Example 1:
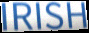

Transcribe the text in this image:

IRISH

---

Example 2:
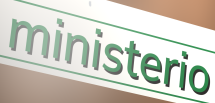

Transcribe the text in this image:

ministerio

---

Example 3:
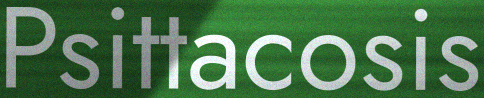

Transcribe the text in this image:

Psittacosis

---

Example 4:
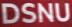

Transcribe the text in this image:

DSNU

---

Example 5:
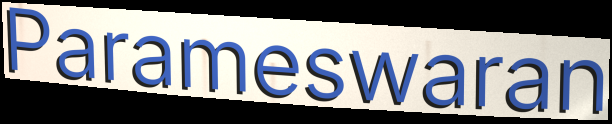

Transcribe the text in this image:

Parameswaran